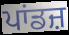
ਪਾਂਡਜ਼